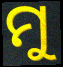
ମୁ